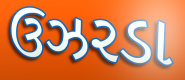
ઉઝરડા